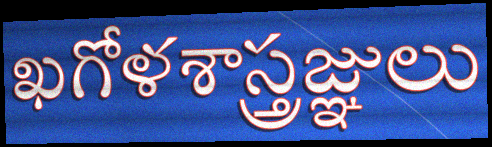
ఖగోళశాస్త్రజ్ఞులు